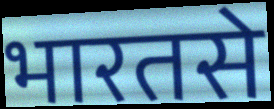
भारतसे